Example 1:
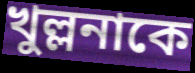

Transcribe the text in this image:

খুল্লনাকে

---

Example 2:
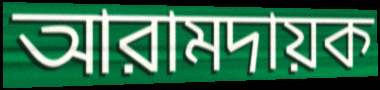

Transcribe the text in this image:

আরামদায়ক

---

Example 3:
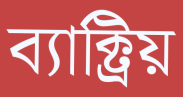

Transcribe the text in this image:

ব্যাক্ট্রিয়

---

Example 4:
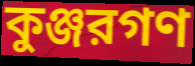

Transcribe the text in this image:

কুঞ্জরগণ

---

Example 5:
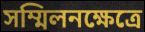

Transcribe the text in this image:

সম্মিলনক্ষেত্রে